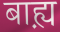
बाह्य़